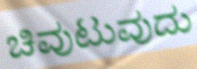
ಚಿವುಟುವುದು